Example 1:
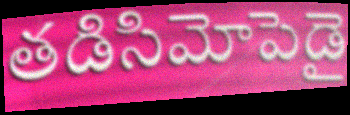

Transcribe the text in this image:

తడిసిమోపెడై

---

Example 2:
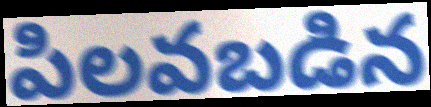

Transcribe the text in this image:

పిలవబడిన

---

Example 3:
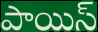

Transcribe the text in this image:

పాయిస్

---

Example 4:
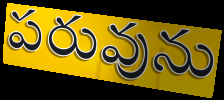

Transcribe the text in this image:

పరువును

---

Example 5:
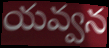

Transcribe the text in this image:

యవ్వన